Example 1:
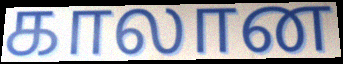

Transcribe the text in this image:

காலான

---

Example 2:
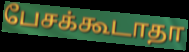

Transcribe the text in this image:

பேசக்கூடாதா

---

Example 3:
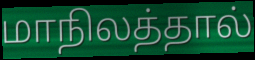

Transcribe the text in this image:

மாநிலத்தால்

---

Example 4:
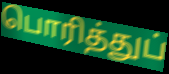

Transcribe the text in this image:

பொரித்துப்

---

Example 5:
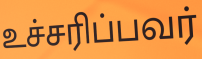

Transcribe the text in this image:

உச்சரிப்பவர்